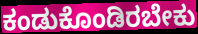
ಕಂಡುಕೊಂಡಿರಬೇಕು